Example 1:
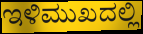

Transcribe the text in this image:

ಇಳಿಮುಖದಲ್ಲಿ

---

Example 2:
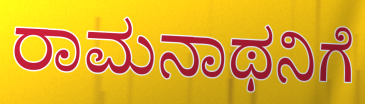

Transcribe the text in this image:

ರಾಮನಾಥನಿಗೆ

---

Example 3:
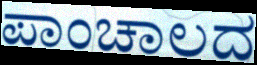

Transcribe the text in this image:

ಪಾಂಚಾಲದ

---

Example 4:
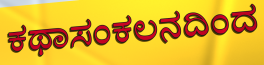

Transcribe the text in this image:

ಕಥಾಸಂಕಲನದಿಂದ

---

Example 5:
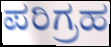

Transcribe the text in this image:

ಪರಿಗ್ರಹ